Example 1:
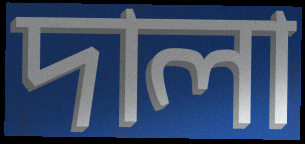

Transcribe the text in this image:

দালা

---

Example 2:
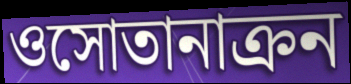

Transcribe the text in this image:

ওসোতানাক্রন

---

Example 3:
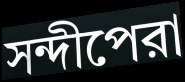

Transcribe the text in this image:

সন্দীপেরা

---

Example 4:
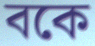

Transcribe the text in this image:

বকে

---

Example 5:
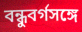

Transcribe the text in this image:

বন্ধুবর্গসঙ্গে